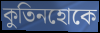
কুতিনহোকে